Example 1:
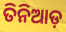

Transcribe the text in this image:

ତିନିଆଡ଼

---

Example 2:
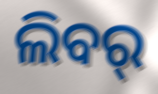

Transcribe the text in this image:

ଲିବର୍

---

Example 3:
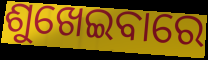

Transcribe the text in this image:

ଶୁଖେଇବାରେ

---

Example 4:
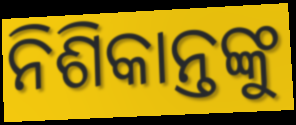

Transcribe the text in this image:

ନିଶିକାନ୍ତଙ୍କୁ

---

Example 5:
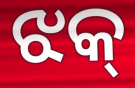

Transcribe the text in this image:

ଝକ୍